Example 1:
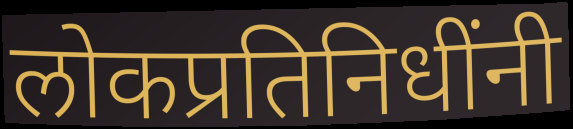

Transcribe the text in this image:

लोकप्रतिनिधींनी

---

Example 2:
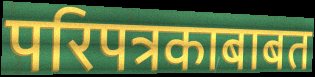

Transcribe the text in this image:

परिपत्रकाबाबत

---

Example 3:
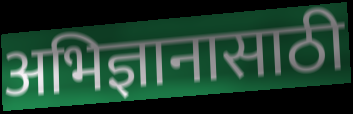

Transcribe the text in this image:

अभिज्ञानासाठी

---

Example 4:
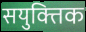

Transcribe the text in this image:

सयुक्तिक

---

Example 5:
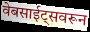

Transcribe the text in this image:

वेबसाईट्सवरून